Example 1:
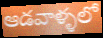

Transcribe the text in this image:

ఆడవాళ్ళలో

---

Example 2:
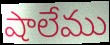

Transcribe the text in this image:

షాలేము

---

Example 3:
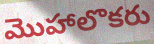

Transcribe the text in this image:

మొహాలొకరు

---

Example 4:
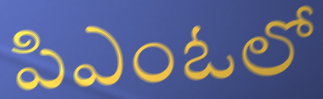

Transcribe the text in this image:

పిఎంఓలో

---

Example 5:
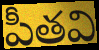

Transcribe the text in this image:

పీతవి